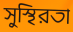
সুস্থিরতা